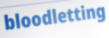
bloodletting